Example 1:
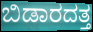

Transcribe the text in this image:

ಬಿಡಾರದತ್ತ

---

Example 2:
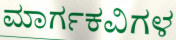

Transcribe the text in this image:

ಮಾರ್ಗಕವಿಗಳ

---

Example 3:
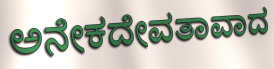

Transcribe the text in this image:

ಅನೇಕದೇವತಾವಾದ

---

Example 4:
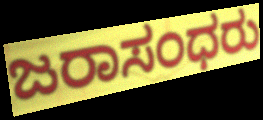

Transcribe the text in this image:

ಜರಾಸಂಧರು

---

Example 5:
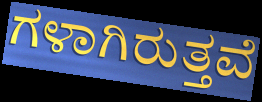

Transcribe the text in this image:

ಗಳಾಗಿರುತ್ತವೆ